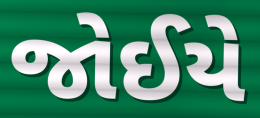
જોઈયે